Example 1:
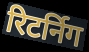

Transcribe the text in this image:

रिटर्निग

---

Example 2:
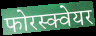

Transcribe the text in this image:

फोरस्क्वेयर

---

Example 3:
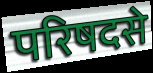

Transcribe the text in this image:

परिषदसे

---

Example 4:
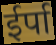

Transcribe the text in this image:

ईर्पा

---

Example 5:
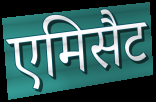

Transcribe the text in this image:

एमिसैट